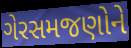
ગેરસમજણોને